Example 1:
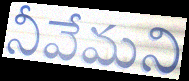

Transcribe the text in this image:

నీవేమని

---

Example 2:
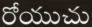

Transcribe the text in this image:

రోయుచు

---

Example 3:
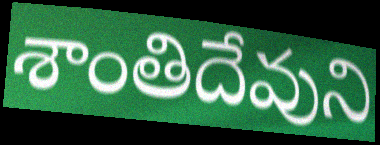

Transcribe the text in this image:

శాంతిదేవుని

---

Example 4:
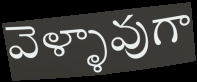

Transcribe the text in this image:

వెళ్ళావుగా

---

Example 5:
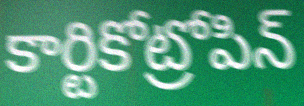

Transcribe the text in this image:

కార్టికోట్రోపిన్